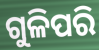
ଗୁଳିପରି